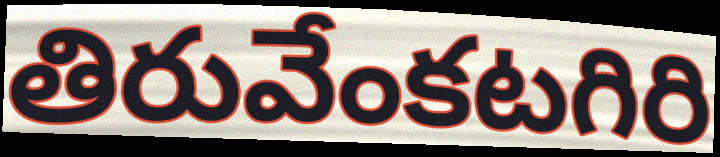
తిరువేంకటగిరి